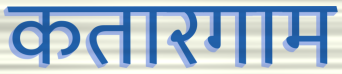
कतारगाम